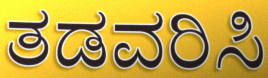
ತಡವರಿಸಿ